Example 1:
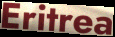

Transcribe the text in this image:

Eritrea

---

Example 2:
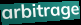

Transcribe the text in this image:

arbitrage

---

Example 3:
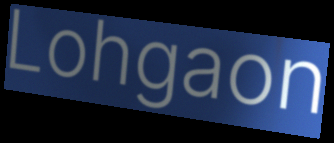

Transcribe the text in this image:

Lohgaon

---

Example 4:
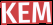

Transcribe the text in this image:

KEM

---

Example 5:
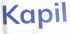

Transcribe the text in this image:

Kapil